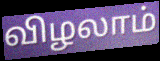
விழலாம்